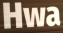
Hwa